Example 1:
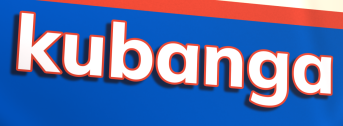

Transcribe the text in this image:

kubanga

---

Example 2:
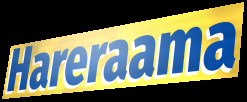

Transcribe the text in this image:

Hareraama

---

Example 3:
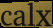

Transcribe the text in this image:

calx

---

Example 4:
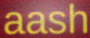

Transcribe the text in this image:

aash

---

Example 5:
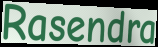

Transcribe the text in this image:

Rasendra